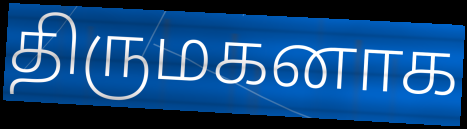
திருமகனாக